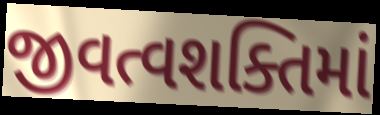
જીવત્વશક્તિમાં